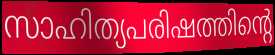
സാഹിത്യപരിഷത്തിന്റെ